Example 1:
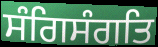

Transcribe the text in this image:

ਸੰਗਿਸੰਗਤਿ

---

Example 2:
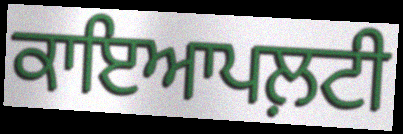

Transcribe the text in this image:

ਕਾਇਆਪਲ਼ਟੀ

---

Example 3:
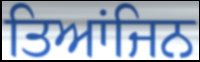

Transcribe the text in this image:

ਤਿਆਂਜਿਨ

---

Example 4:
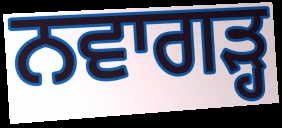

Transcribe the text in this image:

ਨਵਾਗੜ੍ਹ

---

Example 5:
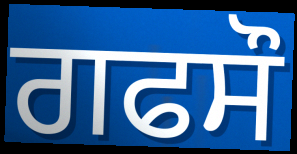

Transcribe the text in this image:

ਗਫਸੌ